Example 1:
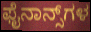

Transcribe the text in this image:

ಫೈನಾನ್ಸ್‌ಗಳ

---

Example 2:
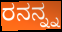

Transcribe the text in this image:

ರನನ್ನ್ನ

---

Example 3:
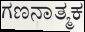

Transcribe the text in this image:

ಗಣನಾತ್ಮಕ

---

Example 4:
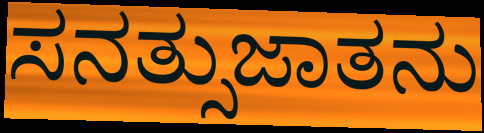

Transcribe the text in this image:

ಸನತ್ಸುಜಾತನು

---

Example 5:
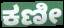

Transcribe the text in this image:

ಕಣೀ